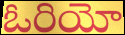
ఓరియో